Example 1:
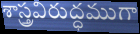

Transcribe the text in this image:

శాస్త్రవిరుద్ధముగా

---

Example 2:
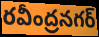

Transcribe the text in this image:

రవీంద్రనగర్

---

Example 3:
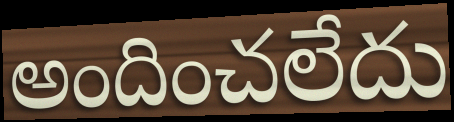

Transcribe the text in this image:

అందించలేదు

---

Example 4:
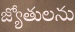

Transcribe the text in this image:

జ్యోతులను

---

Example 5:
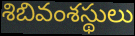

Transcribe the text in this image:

శిబివంశస్థులు